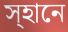
স্হানে